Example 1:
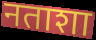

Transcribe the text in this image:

नताशा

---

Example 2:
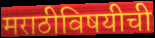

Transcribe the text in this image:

मराठीविषयीची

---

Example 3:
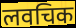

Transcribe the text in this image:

लवचिक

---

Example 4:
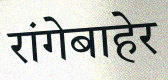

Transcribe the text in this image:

रांगेबाहेर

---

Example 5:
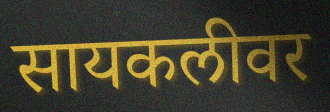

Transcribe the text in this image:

सायकलीवर